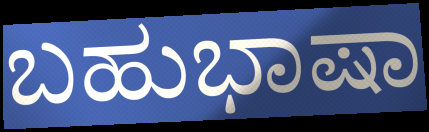
ಬಹುಭಾಷಾ